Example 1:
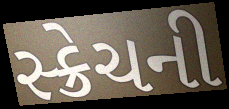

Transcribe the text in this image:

સ્ક્રેચની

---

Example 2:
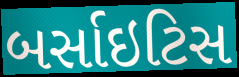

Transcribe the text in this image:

બર્સાઇટિસ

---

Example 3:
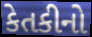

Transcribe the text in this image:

કેતકીનો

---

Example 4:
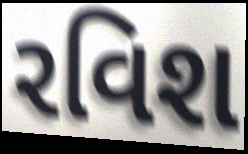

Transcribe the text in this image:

રવિશ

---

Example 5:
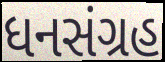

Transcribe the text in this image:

ધનસંગ્રહ